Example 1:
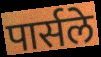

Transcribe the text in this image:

पार्सले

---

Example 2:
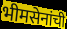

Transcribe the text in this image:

भीमसेनांची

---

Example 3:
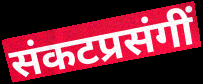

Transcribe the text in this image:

संकटप्रसंगीं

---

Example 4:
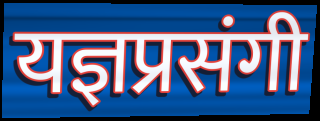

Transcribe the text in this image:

यज्ञप्रसंगी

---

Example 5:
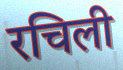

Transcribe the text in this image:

रचिली